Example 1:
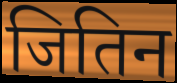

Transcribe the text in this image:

जितिन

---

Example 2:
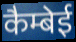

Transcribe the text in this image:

कैम्बेई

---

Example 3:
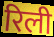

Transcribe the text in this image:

रिली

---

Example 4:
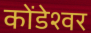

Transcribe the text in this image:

कोंडेश्वर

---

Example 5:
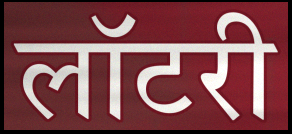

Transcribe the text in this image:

लॉटरी